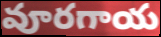
వూరగాయ